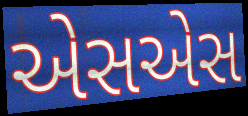
એસએસ